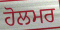
ਹੋਲਮਰ